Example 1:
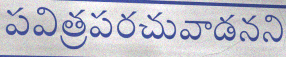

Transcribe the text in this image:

పవిత్రపరచువాడనని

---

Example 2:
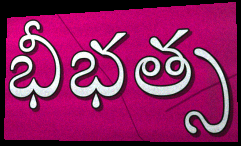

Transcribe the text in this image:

భీభత్స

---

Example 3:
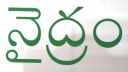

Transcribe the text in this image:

నైద్రం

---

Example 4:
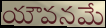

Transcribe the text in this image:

యౌవనమే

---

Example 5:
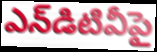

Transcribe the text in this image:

ఎన్‌డిటివీపై